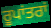
ਰੂਪਾਂਤਰਾਂ